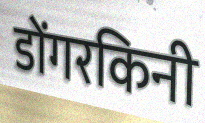
डोंगरकिनी